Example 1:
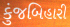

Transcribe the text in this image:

કુંજબિહારી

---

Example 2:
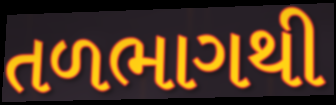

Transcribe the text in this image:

તળભાગથી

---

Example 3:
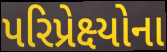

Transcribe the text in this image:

પરિપ્રેક્ષ્યોના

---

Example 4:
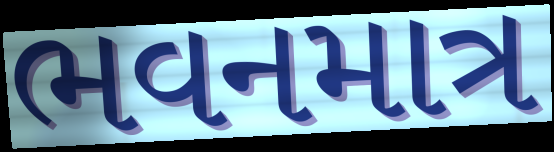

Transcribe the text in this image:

ભવનમાત્ર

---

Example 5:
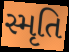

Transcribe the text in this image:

સ્મૃતિ